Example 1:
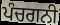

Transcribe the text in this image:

ਪੰਚਗਨੀ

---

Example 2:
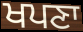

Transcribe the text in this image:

ਖਪਣਾ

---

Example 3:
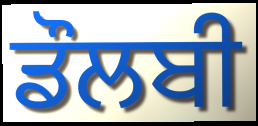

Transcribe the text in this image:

ਡੌਲਬੀ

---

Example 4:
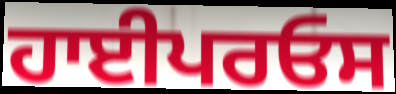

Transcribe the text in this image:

ਹਾਈਪਰਓਸ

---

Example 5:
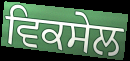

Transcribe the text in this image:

ਵਿਕਸੇਲ